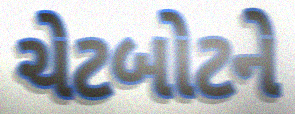
ચેટબોટને